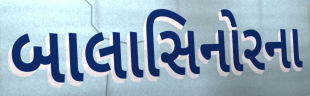
બાલાસિનોરના